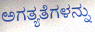
ಅಗತ್ಯತೆಗಳನ್ನು